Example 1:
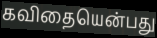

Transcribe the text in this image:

கவிதையென்பது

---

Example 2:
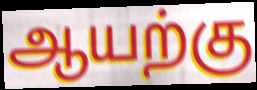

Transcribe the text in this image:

ஆயற்கு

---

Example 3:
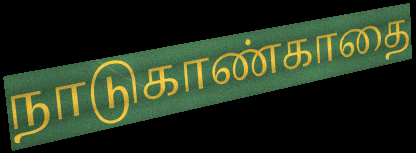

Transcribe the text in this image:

நாடுகாண்காதை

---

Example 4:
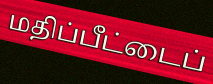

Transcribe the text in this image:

மதிப்பீட்டைப்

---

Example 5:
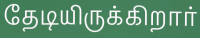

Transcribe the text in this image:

தேடியிருக்கிறார்